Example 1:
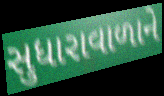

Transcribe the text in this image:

સુધારાવાળાને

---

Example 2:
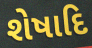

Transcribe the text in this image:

શેષાદિ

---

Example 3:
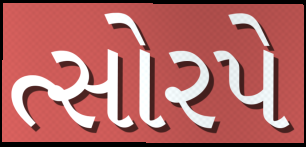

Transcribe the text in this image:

ત્સોરપે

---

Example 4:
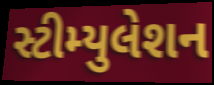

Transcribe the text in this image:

સ્ટીમ્યુલેશન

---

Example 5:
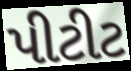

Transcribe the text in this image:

પીટીટ